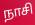
நாசி